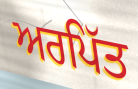
ਅਰਪਿੱਤ